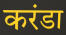
करंडा